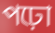
পঢ়ো